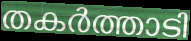
തകർത്താടി